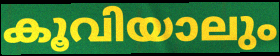
കൂവിയാലും